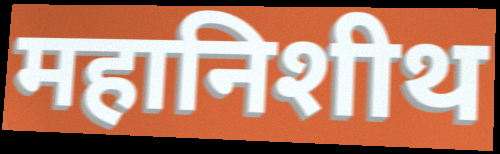
महानिशीथ